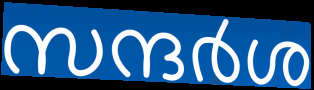
സന്ദർശ